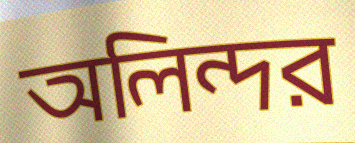
অলিন্দর